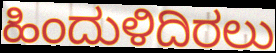
ಹಿಂದುಳಿದಿರಲು